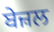
ਬੇਜ਼ਲ